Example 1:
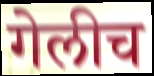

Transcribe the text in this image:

गेलीच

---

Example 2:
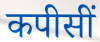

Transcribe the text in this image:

कपीसीं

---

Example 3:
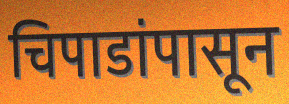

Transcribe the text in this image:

चिपाडांपासून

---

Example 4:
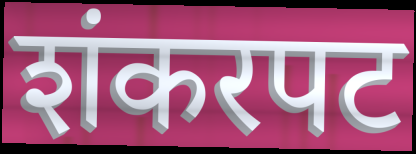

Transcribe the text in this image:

शंकरपट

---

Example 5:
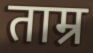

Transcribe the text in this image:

ताम्र